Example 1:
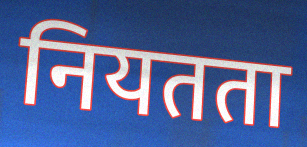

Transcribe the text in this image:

नियतता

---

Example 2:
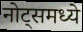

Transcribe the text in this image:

नोट्समध्ये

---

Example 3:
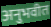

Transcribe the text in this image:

अनुभवीत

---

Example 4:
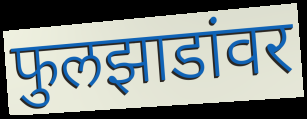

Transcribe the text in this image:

फुलझाडांवर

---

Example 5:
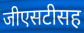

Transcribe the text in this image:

जीएसटीसह